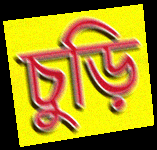
চুড়ি